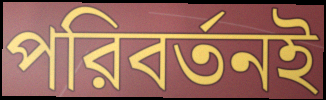
পরিবর্তনই